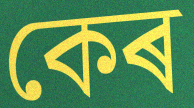
কেৰ